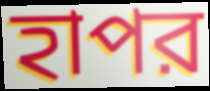
হাপর